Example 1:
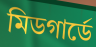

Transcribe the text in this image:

মিডগার্ডে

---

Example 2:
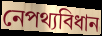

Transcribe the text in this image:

নেপথ্যবিধান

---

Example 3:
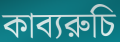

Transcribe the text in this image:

কাব্যরুচি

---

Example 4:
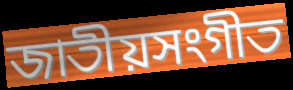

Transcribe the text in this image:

জাতীয়সংগীত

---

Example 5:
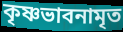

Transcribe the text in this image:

কৃষ্ণভাবনামৃত